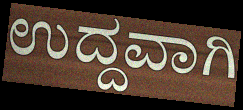
ಉದ್ದವಾಗಿ